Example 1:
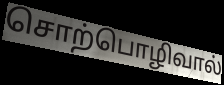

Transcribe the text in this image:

சொற்பொழிவால்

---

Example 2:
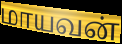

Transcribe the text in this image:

மாயவன்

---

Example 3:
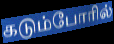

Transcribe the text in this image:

கடும்போரில்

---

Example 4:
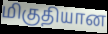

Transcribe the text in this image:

மிகுதியான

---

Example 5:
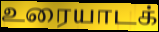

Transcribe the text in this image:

உரையாடக்